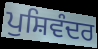
ਪੁਸ਼ਿਵੰਦਰ